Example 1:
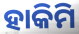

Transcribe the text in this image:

ହାକିମି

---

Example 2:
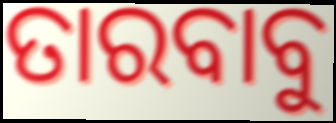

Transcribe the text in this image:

ତାରବାବୁ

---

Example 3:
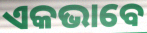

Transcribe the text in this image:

ଏକଭାବେ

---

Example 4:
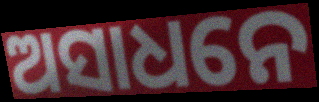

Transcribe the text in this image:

ଅସାଧନେ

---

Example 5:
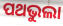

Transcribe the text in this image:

ପଥଭୁଲା